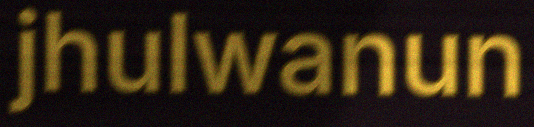
jhulwanun